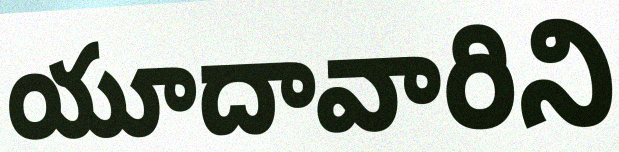
యూదావారిని